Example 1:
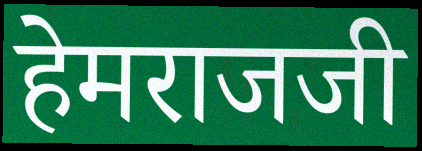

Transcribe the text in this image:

हेमराजजी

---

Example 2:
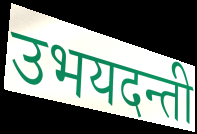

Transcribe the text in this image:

उभयदन्ती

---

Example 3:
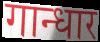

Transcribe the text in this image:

गान्धार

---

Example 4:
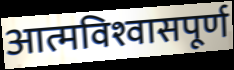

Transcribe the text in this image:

आत्मविश्वासपूर्ण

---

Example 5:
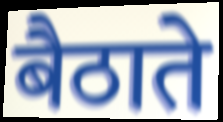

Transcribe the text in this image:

बैठाते